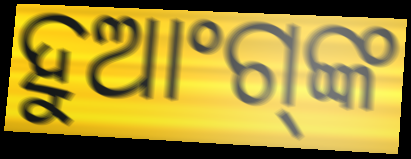
ହୁଆଂଗ୍‍ଙ୍କ